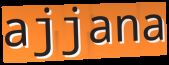
ajjana